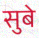
सुबे